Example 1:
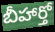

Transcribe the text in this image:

బీహార్తో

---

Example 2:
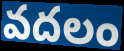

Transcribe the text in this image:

వదలం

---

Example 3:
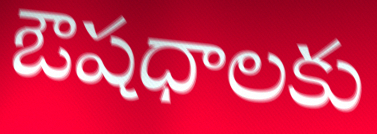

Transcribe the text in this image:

ఔషధాలకు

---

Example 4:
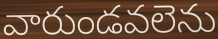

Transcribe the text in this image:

వారుండవలెను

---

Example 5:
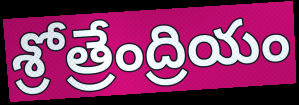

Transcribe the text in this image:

శ్రోత్రేంద్రియం